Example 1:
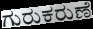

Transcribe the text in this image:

ಗುರುಕರುಣೆ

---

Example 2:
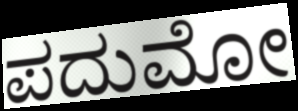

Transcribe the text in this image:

ಪದುಮೋ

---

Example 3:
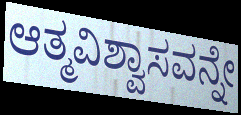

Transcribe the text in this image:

ಆತ್ಮವಿಶ್ವಾಸವನ್ನೇ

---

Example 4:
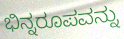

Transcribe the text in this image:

ಭಿನ್ನರೂಪವನ್ನು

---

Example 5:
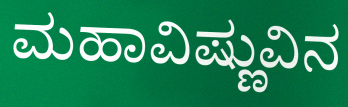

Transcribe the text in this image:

ಮಹಾವಿಷ್ಣುವಿನ